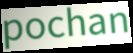
pochan